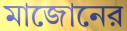
মাজোনের